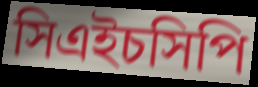
সিএইচসিপি